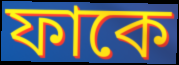
ফাকে